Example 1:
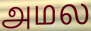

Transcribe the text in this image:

அமல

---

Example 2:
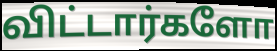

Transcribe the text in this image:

விட்டார்களோ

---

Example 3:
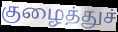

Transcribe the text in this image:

குழைத்துச்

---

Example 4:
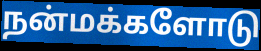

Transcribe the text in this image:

நன்மக்களோடு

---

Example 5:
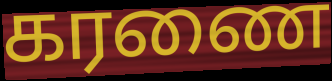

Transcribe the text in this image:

கரணை